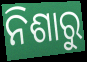
ନିଶାରୁ